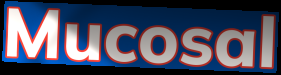
Mucosal